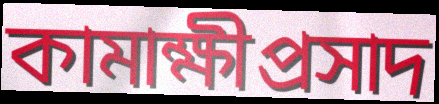
কামাক্ষীপ্রসাদ